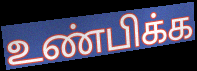
உண்பிக்க